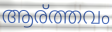
ആര്ത്തവം